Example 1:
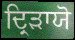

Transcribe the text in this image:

ਦ੍ਰਿੜਾਯੋ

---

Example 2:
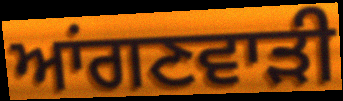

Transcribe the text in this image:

ਆਂਗਣਵਾੜੀ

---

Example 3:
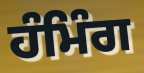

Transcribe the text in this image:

ਹੰਮਿੰਗ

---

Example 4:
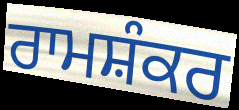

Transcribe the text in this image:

ਰਾਮਸ਼ੰਕਰ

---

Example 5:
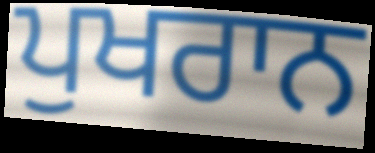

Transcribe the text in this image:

ਪੁਖਰਾਨ